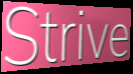
Strive